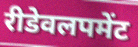
रीडेवलपमेंट